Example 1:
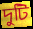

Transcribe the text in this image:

দুটি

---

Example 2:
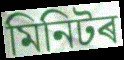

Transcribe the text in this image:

মিনিটৰ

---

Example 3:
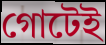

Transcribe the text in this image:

গোটেই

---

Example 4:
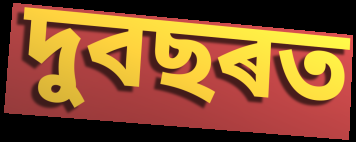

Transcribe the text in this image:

দুবছৰত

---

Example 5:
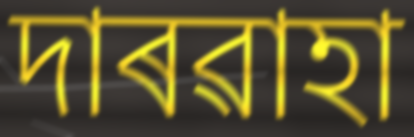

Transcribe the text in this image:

দাৰৱাহা